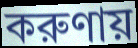
করুণায়